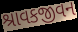
શ્રાવકજીવન